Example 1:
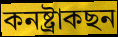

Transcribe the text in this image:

কনষ্ট্ৰাকছন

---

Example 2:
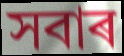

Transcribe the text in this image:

সবাৰ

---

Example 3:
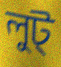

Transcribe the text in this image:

লুট্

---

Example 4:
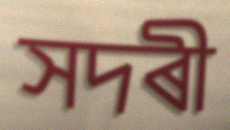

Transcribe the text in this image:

সদৰী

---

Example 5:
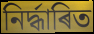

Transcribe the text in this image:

নিৰ্দ্ধাৰিত